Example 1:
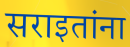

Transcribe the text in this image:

सराइतांना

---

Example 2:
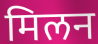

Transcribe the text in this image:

मिलन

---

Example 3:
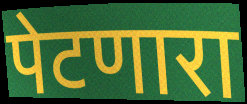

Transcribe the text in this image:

पेटणारा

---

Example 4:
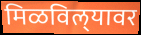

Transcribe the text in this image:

मिळविल्यावर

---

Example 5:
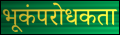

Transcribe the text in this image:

भूकंपरोधकता